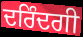
ਦਰਿੰਦਗੀ